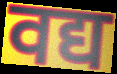
वद्य